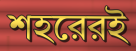
শহরেরই